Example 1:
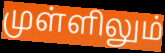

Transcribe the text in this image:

முள்ளிலும்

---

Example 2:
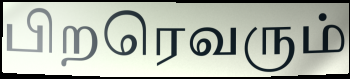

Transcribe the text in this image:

பிறரெவரும்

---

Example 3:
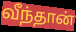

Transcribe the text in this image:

வீந்தான்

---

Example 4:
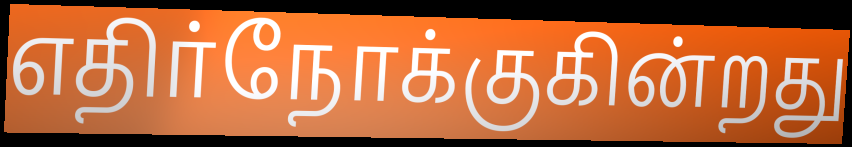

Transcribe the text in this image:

எதிர்நோக்குகின்றது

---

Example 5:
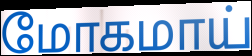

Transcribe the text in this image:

மோகமாய்